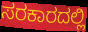
ಸರಕಾರದಲ್ಲಿ